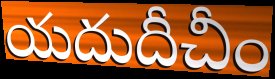
యదుదీచీం